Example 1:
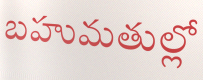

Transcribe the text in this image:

బహుమతుల్లో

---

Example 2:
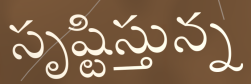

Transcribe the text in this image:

సృష్టిస్తున్న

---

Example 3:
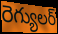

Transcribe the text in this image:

రెగ్యులర్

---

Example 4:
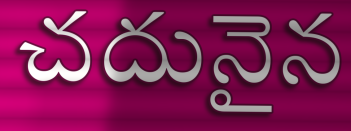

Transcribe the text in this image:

చదునైన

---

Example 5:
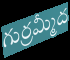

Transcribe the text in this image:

గుర్రమ్మీద